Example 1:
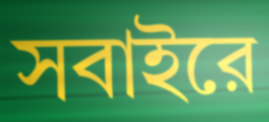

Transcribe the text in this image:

সবাইরে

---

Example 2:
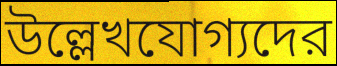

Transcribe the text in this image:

উল্লেখযোগ্যদের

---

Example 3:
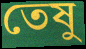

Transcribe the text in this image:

তেষু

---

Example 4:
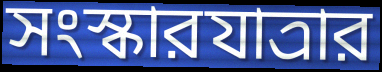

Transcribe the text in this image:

সংস্কারযাত্রার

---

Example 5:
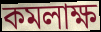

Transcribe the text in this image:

কমলাক্ষ